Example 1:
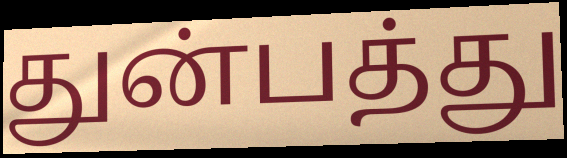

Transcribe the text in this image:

துன்பத்து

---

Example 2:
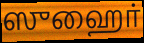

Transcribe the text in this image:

ஸுஹைர்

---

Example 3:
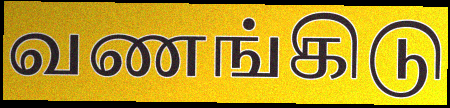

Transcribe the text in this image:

வணங்கிடு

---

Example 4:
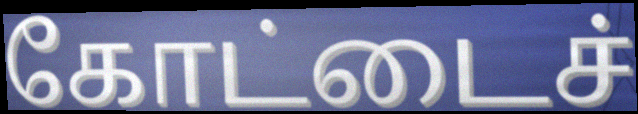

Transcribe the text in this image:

கோட்டைச்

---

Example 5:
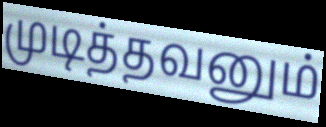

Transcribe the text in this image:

முடித்தவனும்